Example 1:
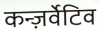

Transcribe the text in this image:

कन्ज़र्वेटिव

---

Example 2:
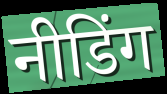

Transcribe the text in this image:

नीडिंग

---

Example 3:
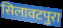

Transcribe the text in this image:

सिलावटपुरा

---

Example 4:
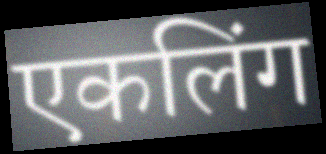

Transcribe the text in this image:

एकलिंग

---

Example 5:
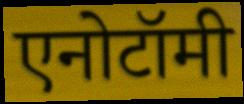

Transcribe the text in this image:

एनोटॉमी